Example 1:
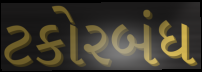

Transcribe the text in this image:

ટકોરબંધ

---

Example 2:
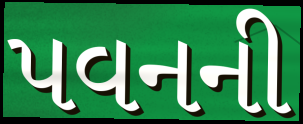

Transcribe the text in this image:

પવનની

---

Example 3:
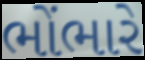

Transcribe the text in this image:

ભોંભારે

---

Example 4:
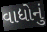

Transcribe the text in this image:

વાદ્યોનું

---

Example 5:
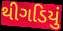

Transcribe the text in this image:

થીગડિયું